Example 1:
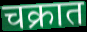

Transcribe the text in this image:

चक्रात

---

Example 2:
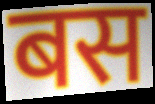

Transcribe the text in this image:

बस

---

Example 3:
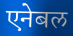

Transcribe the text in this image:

एनेबल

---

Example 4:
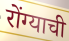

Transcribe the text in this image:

रोंग्याची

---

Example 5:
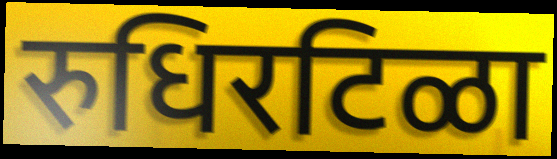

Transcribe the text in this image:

रुधिरटिळा